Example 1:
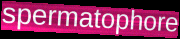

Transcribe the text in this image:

spermatophore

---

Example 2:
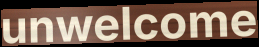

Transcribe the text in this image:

unwelcome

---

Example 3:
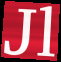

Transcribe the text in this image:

Jl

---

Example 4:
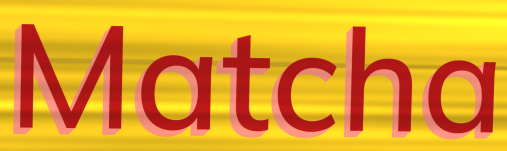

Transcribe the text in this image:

Matcha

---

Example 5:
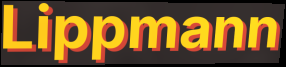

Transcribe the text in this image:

Lippmann